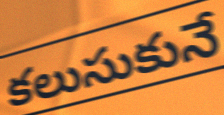
కలుసుకునే